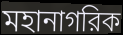
মহানাগরিক